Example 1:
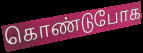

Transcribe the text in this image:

கொண்டுபோக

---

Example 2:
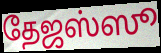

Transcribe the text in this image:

தேஜஸ்ஸூ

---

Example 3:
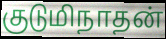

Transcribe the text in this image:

குடுமிநாதன்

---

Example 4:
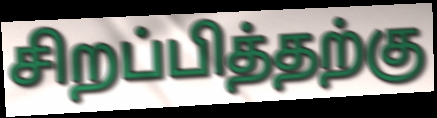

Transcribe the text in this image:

சிறப்பித்தற்கு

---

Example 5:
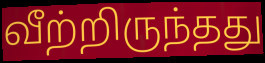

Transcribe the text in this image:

வீற்றிருந்தது